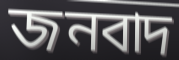
জনবাদ